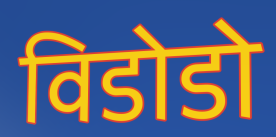
विडोडो